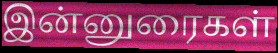
இன்னுரைகள்